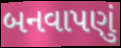
બનવાપણું